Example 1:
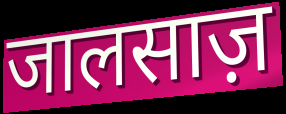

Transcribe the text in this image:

जालसाज़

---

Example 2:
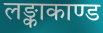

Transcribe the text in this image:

लङ्काकाण्ड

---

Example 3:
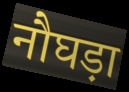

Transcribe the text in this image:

नौघड़ा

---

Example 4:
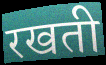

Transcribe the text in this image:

रखती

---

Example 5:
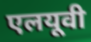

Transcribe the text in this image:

एलयूवी